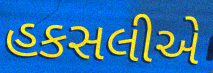
હકસલીએ